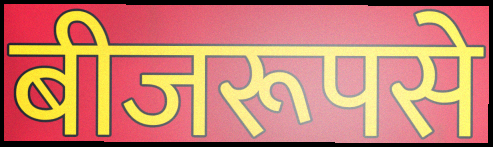
बीजरूपसे